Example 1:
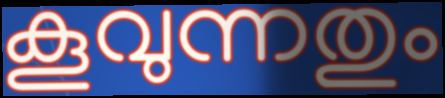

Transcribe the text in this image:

കൂവുന്നതും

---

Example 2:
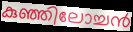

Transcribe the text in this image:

കുഞ്ഞിലോച്ചൻ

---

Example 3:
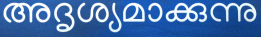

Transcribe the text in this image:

അദൃശ്യമാക്കുന്നു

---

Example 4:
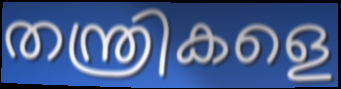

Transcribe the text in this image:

തന്ത്രികളെ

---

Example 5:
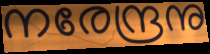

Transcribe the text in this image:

നരേന്ദ്രനു